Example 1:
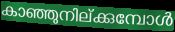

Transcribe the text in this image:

കാഞ്ഞുനില്ക്കുമ്പോൾ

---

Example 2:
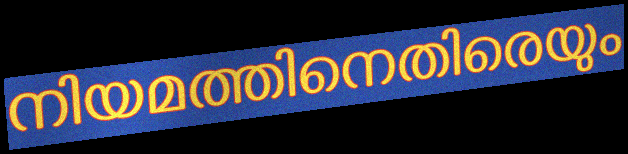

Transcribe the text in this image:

നിയമത്തിനെതിരെയും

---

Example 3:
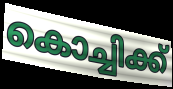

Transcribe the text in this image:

കൊച്ചിക്ക്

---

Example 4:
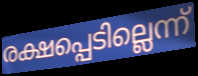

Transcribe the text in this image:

രക്ഷപ്പെടില്ലെന്ന്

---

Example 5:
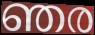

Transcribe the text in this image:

ഞര